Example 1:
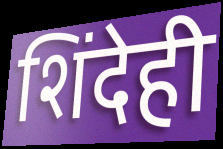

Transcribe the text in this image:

शिंदेही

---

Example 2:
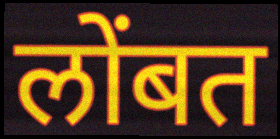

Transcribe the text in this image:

लोंबत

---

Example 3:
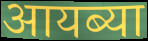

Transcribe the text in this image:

आयब्या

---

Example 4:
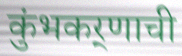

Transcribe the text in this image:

कुंभकर्णाची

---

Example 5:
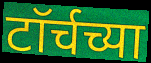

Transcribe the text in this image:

टॉर्चच्या